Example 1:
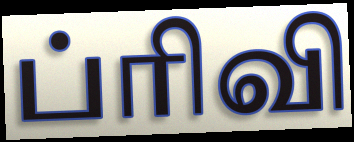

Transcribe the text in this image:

ப்ரிவி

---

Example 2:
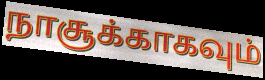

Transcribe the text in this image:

நாசூக்காகவும்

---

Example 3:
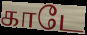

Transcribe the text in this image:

காடே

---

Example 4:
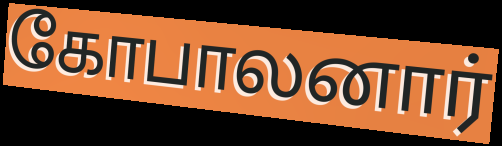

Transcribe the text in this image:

கோபாலனார்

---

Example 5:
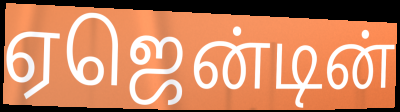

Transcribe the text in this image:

ஏஜென்டின்